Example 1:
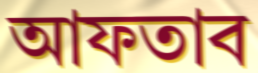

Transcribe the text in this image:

আফতাব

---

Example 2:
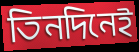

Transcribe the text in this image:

তিনদিনেই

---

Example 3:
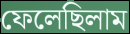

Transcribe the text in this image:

ফেলেছিলাম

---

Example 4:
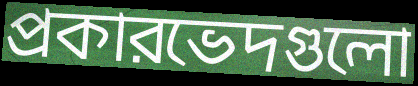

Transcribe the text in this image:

প্রকারভেদগুলো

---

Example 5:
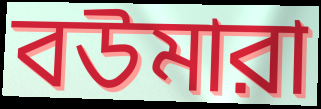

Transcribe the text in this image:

বউমারা